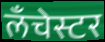
लँचेस्टर